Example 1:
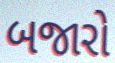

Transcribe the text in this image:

બજારો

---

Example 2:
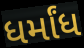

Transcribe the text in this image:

ધર્માંધ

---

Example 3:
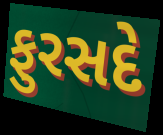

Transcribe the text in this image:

ફુરસદે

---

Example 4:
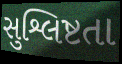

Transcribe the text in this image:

સુશ્લિષ્ટતા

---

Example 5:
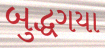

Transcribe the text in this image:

બુદ્ધગયા